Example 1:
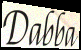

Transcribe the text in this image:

Dabba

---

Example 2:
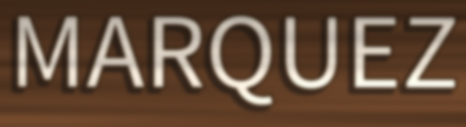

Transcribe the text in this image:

MARQUEZ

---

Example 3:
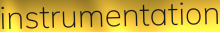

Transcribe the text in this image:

instrumentation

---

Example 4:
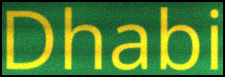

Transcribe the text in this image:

Dhabi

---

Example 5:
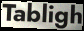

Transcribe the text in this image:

Tabligh